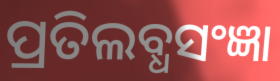
ପ୍ରତିଲବ୍ଧସଂଜ୍ଞା